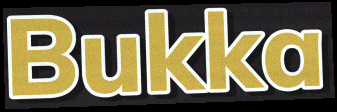
Bukka